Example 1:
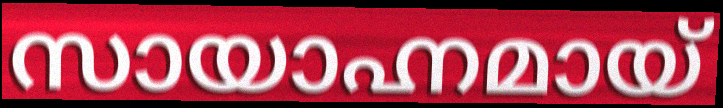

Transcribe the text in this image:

സായാഹ്നമായ്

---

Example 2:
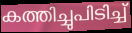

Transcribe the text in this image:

കത്തിച്ചുപിടിച്ച്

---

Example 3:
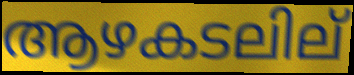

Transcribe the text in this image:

ആഴകടലില്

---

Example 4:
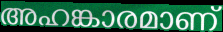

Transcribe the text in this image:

അഹങ്കാരമാണ്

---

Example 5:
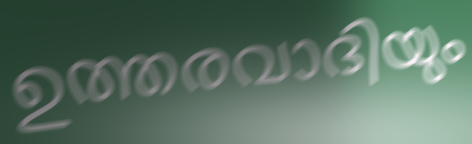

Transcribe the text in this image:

ഉത്തരവാദിയും